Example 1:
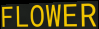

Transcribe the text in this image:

FLOWER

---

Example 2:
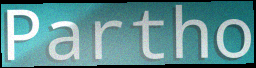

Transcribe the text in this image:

Partho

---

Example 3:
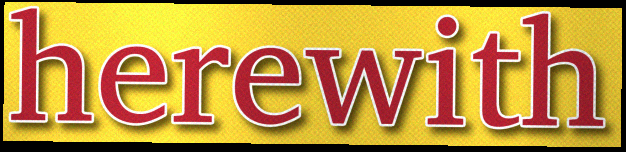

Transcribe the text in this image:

herewith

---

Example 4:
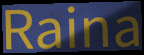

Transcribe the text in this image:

Raina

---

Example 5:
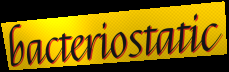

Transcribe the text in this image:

bacteriostatic